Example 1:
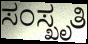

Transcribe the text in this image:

ಸಂಸ್ಖೃತಿ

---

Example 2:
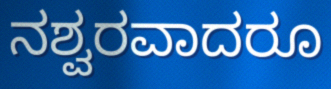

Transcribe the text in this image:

ನಶ್ವರವಾದರೂ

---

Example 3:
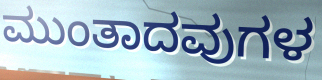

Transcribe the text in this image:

ಮುಂತಾದವುಗಳ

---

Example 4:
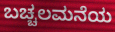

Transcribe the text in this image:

ಬಚ್ಚಲಮನೆಯ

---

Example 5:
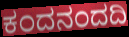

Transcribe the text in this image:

ಕಂದನಂದದಿ